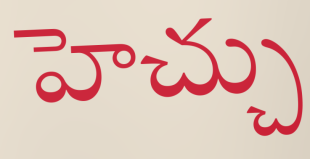
హెచ్చు